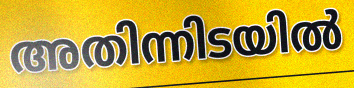
അതിന്നിടയിൽ